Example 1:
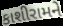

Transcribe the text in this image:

કાશીરામને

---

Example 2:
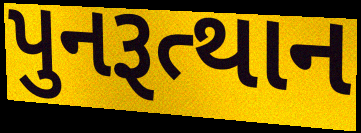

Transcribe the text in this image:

પુનરૂત્થાન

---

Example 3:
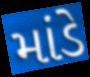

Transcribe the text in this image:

માંડે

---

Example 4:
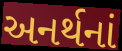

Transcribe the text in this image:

અનર્થનાં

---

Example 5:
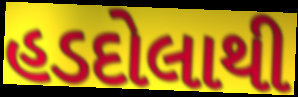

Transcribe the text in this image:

હડદોલાથી